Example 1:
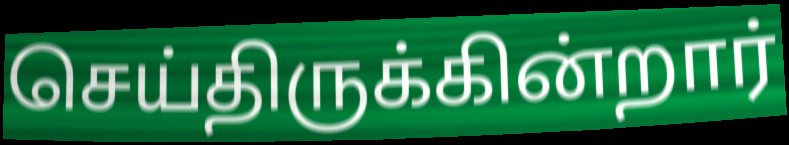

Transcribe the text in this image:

செய்திருக்கின்றார்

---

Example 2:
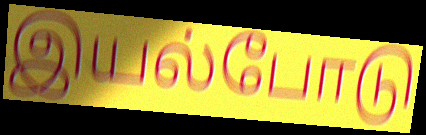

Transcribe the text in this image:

இயல்போடு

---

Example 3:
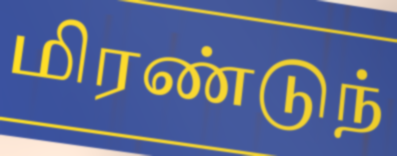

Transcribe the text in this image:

மிரண்டுந்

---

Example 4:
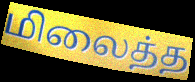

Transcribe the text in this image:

மிலைத்த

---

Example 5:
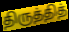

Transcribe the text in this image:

திருத்தித்